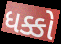
ધક્કો